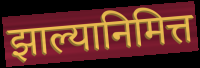
झाल्यानिमित्त